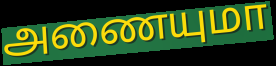
அணையுமா